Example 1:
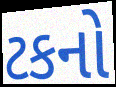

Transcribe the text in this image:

ટકનો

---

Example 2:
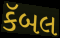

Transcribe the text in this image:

કૅબલ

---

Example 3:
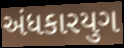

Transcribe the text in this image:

અંધકારયુગ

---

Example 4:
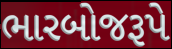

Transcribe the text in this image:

ભારબોજરૂપે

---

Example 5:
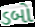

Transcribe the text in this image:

ડબો